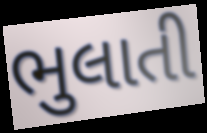
ભુલાતી